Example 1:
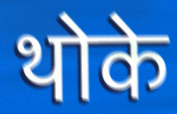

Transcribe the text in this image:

थोके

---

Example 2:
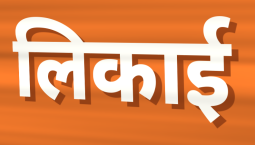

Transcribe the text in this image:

लिकाई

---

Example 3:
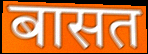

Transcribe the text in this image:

बासत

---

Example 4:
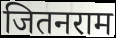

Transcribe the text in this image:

जितनराम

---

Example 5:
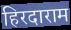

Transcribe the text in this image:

हिरदाराम